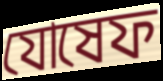
যোষেফ